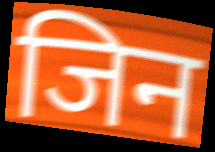
जिन